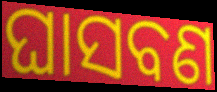
ଘାସବଣ